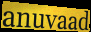
anuvaad